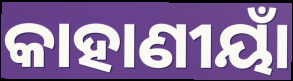
କାହାଣୀୟାଁ